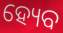
ହ୍ୟେବ